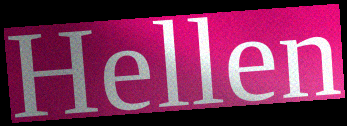
Hellen